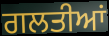
ਗਲਤੀਆਂ